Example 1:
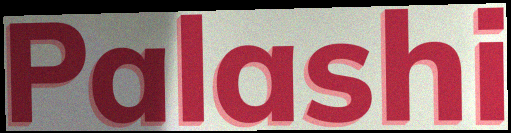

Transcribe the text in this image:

Palashi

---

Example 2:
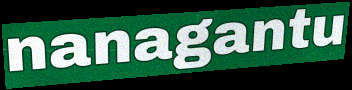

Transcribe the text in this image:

nanagantu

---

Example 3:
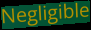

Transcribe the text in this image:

Negligible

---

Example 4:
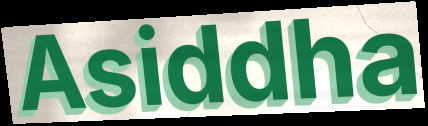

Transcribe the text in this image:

Asiddha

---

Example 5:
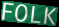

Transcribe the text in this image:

FOLK